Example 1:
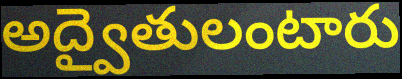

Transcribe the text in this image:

అద్వైతులంటారు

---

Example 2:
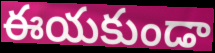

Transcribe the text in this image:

ఈయకుండా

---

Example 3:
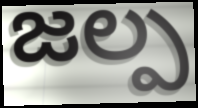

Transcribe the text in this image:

జల్ప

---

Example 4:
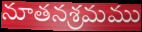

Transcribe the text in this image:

నూతనశ్రమము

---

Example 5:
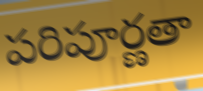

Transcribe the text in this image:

పరిపూర్ణతా